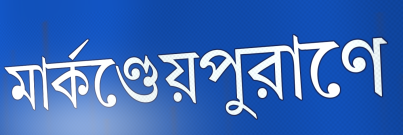
মার্কণ্ডেয়পুরাণে